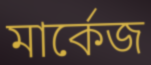
মার্কেজ